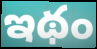
ఇథం